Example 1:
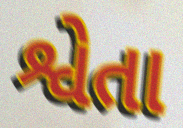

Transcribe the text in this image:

શ્વેતા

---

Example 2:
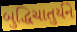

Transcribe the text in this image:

બુદ્ધિચાતુર્યને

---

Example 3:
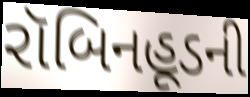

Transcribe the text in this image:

રૉબિનહૂડની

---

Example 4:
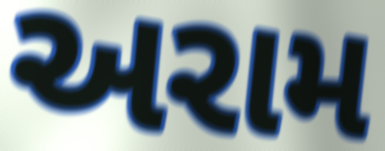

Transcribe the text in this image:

અરામ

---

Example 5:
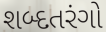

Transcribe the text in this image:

શબ્દતરંગો